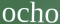
ocho